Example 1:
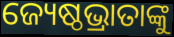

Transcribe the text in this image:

ଜ୍ୟେଷ୍ଠଭ୍ରାତାଙ୍କୁ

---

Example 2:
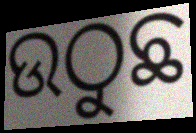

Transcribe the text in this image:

ଉଠୁଛ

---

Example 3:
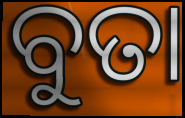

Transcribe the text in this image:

ବୁତା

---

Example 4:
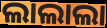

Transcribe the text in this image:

ଲାଲାଲା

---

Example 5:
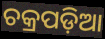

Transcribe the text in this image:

ଚକ୍ରପଡ଼ିଆ